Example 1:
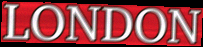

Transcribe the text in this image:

LONDON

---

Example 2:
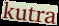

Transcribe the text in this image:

kutra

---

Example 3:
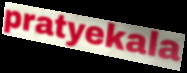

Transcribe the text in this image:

pratyekala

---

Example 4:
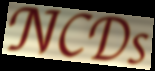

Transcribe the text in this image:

NCDs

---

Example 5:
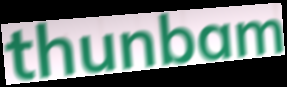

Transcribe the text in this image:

thunbam